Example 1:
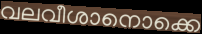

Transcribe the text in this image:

വലവീശാനൊക്കെ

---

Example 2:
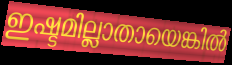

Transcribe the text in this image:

ഇഷ്ടമില്ലാതായെങ്കിൽ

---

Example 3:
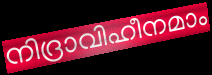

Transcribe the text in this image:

നിദ്രാവിഹീനമാം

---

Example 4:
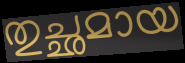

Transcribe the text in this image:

തുച്ഛമായ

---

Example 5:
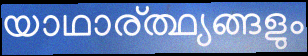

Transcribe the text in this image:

യാഥാര്ത്ഥ്യങ്ങളും